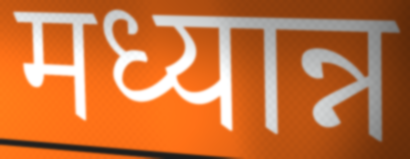
मध्यान्न